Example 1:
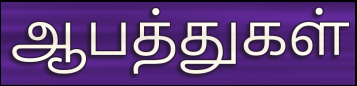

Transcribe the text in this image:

ஆபத்துகள்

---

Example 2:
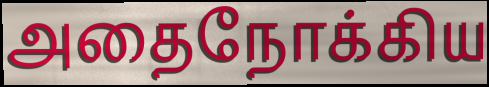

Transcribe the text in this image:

அதைநோக்கிய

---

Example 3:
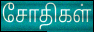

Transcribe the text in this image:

சோதிகள்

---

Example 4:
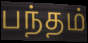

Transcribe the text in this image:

பந்தம்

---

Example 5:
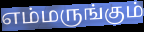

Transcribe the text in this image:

எம்மருங்கும்